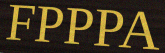
FPPPA